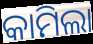
କାମିଲା